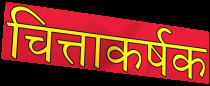
चित्ताकर्षक